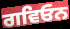
ਗਵਿਓਨ